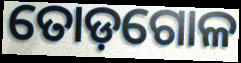
ତୋଡ଼ଗୋଳ